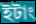
ইটাং